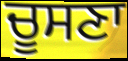
ਚੂਸਣਾ